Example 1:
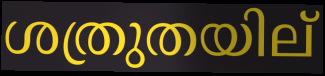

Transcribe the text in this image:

ശത്രുതയില്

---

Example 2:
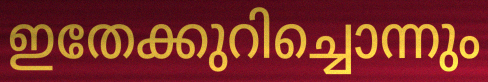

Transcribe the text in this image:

ഇതേക്കുറിച്ചൊന്നും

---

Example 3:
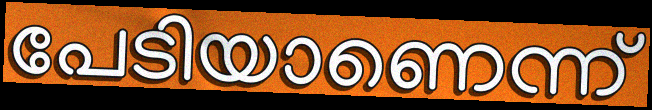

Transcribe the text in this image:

പേടിയാണെന്ന്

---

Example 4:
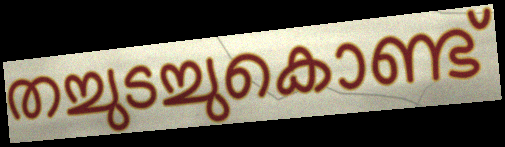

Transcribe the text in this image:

തച്ചുടച്ചുകൊണ്ട്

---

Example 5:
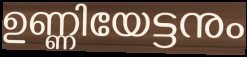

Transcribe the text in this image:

ഉണ്ണിയേട്ടനും